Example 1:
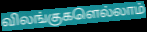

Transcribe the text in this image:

விலங்குகளெல்லாம்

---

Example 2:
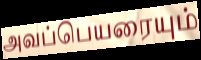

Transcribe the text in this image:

அவப்பெயரையும்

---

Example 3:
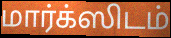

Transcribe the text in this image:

மார்க்ஸிடம்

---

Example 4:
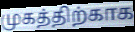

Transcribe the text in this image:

முகத்திற்காக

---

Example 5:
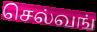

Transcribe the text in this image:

செல்வங்